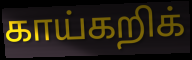
காய்கறிக்